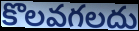
కొలవగలదు